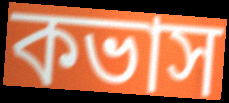
কভাস